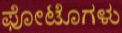
ಫೋಟೊಗಳು